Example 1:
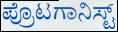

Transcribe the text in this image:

ಪ್ರೊಟಗಾನಿಸ್ಟ್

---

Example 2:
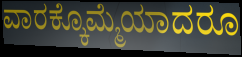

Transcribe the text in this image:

ವಾರಕ್ಕೊಮ್ಮೆಯಾದರೂ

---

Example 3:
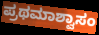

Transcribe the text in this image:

ಪ್ರಥಮಾಶ್ವಾಸಂ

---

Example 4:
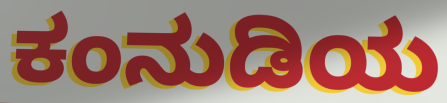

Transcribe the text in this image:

ಕಂನುಡಿಯ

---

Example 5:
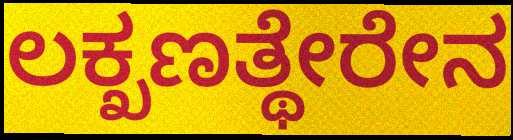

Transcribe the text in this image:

ಲಕ್ಖಣತ್ಥೇರೇನ